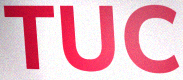
TUC